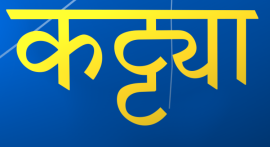
कट्ट्या